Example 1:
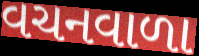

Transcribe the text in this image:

વચનવાળા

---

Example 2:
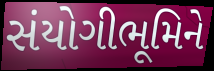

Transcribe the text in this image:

સંયોગીભૂમિને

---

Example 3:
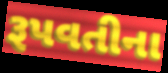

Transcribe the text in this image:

રૂપવતીના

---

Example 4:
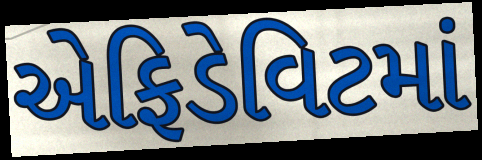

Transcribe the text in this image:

એફિડેવિટમાં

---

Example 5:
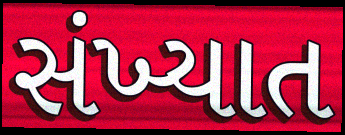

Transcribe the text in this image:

સંખ્યાત